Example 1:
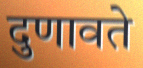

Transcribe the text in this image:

दुणावते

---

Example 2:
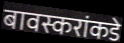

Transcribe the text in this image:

बावस्करांकडे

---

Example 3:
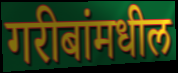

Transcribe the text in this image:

गरीबांमधील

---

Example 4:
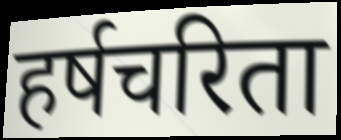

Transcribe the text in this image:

हर्षचरिता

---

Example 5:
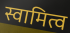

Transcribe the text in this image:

स्वामित्व